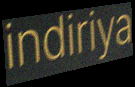
indiriya